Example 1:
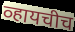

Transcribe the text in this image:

व्हायचीच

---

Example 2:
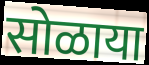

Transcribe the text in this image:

सोळाया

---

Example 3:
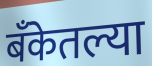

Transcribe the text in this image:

बँकेतल्या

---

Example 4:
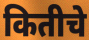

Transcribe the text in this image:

कितीचे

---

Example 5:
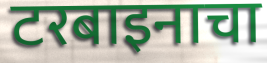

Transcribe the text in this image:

टरबाइनाचा